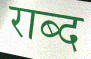
राब्द